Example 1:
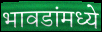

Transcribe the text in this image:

भावडांमध्ये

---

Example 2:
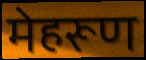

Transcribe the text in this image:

मेहरूण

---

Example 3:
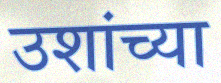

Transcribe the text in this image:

उशांच्या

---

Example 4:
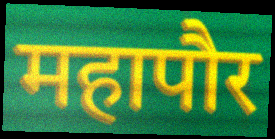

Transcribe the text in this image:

महापौर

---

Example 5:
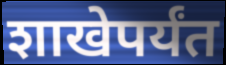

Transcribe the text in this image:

शाखेपर्यंत